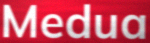
Medua